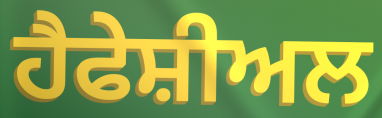
ਹੈਫੇਸ਼ੀਅਲ